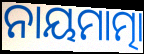
ନାୟମାତ୍ମା